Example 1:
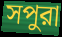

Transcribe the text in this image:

সপুরা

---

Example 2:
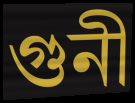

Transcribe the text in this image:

গুনী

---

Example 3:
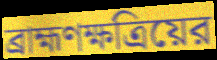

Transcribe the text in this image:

ব্রাহ্মণক্ষত্রিয়ের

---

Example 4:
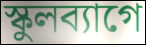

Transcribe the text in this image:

স্কুলব্যাগে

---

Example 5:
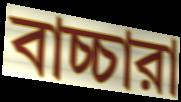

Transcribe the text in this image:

বাচ্চারা